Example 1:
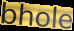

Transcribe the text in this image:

bhole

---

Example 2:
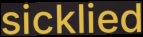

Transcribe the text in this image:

sicklied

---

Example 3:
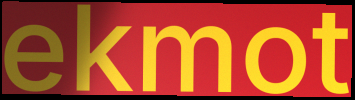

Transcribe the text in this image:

ekmot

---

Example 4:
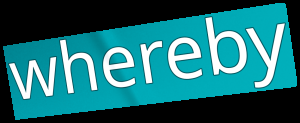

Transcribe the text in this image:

whereby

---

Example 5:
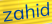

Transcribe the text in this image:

zahid